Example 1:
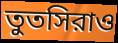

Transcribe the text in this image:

তুতসিরাও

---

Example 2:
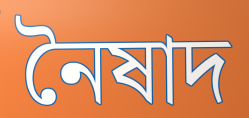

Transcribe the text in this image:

নৈষাদ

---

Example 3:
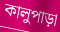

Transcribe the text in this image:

কালুপাড়া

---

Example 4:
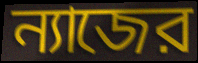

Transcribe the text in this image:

ন্যাজের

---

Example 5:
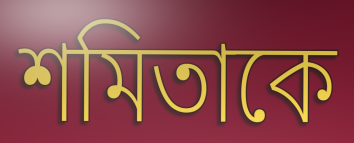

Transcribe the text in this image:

শমিতাকে